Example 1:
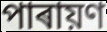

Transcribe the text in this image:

পাৰায়ণ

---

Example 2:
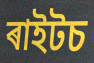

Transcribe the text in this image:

ৰাইটচ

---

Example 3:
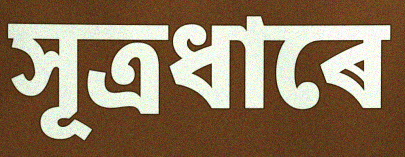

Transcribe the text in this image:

সূত্ৰধাৰে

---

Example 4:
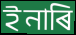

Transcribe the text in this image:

ইনাৰি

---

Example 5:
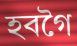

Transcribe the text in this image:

হবগৈ